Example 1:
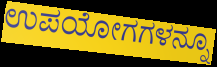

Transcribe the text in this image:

ಉಪಯೋಗಗಳನ್ನೂ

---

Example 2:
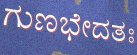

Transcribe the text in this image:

ಗುಣಭೇದತಃ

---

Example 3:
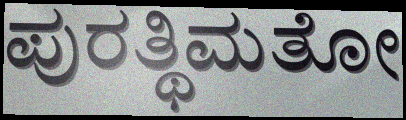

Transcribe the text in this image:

ಪುರತ್ಥಿಮತೋ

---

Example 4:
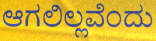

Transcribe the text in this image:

ಆಗಲಿಲ್ಲವೆಂದು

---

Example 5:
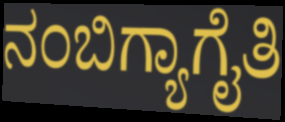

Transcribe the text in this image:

ನಂಬಿಗ್ಯಾಗೈತಿ